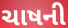
ચાષની